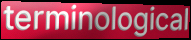
terminological